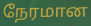
நேரமான